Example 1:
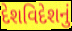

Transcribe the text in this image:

દેશવિદેશનું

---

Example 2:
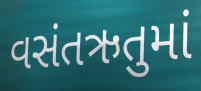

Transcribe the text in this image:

વસંતઋતુમાં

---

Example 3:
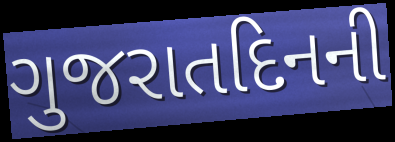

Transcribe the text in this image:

ગુજરાતદિનની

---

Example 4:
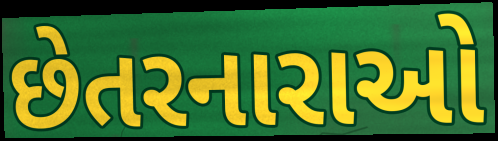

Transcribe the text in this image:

છેતરનારાઓ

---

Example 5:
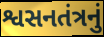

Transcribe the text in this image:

શ્વસનતંત્રનું